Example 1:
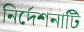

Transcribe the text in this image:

নির্দেশনাটি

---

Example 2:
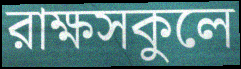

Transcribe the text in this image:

রাক্ষসকুলে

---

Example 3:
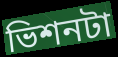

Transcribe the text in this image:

ভিশনটা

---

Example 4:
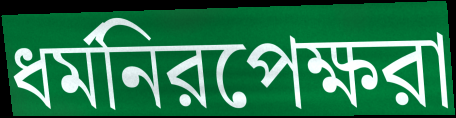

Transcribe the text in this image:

ধর্মনিরপেক্ষরা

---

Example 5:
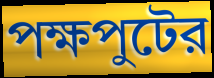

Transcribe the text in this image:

পক্ষপুটের